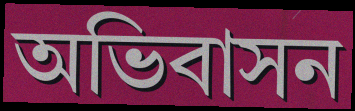
অভিবাসন